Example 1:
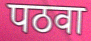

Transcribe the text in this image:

पठवा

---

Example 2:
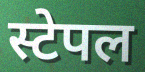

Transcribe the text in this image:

स्टेपल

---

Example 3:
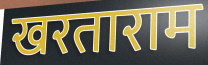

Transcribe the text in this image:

खरताराम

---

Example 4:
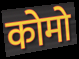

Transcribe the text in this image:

कोमो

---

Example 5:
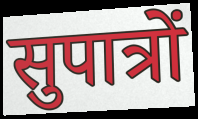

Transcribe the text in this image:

सुपात्रों